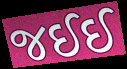
જઈઈ